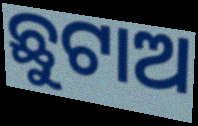
ଛୁଟାଅ